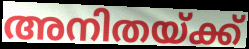
അനിതയ്ക്ക്